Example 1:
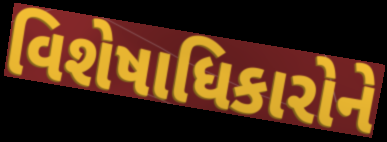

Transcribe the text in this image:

વિશેષાધિકારોને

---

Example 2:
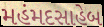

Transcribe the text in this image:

મહંમદસાહેબ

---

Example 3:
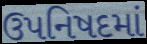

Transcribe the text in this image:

ઉપનિષદમાં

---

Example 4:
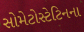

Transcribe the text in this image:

સોમેટોસ્ટેટિનના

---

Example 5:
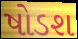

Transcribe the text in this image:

ષોડશ